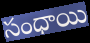
సంధాయి